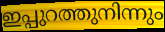
ഇപ്പുറത്തുനിന്നും